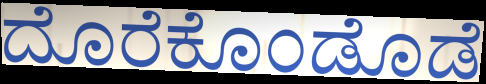
ದೊರೆಕೊಂಡೊಡೆ